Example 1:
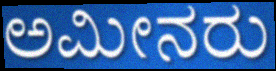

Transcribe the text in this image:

ಅಮೀನರು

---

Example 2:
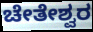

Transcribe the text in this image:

ಚೇತೇಶ್ವರ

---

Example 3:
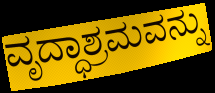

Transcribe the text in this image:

ವೃದ್ಧಾಶ್ರಮವನ್ನು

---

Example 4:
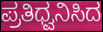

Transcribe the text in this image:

ಪ್ರತಿಧ್ವನಿಸಿದ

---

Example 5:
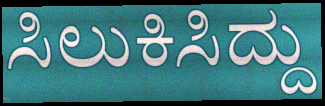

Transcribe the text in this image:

ಸಿಲುಕಿಸಿದ್ದು